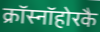
क्रॉस्नॉहोरकै